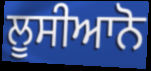
ਲੂਸੀਆਨੋ